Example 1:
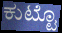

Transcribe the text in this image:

ಕುಟ್ಟೊ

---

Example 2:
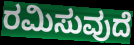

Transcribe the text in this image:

ರಮಿಸುವುದೆ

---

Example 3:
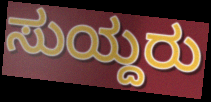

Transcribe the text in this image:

ಸುಯ್ದರು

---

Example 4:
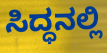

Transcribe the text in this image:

ಸಿದ್ಧನಲ್ಲಿ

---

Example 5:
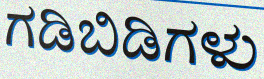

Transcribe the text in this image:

ಗಡಿಬಿಡಿಗಳು